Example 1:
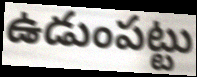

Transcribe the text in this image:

ఉడుంపట్టు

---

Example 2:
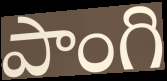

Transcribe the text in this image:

పాంగి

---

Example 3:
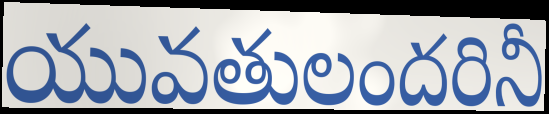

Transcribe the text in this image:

యువతులందరినీ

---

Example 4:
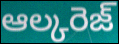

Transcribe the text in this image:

ఆల్కరెజ్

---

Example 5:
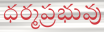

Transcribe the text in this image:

ధర్మప్రభువు